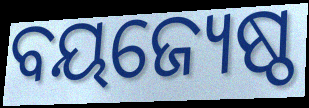
ବୟଜ୍ୟେଷ୍ଠ